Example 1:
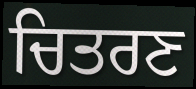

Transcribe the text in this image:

ਚਿਤਰਣ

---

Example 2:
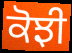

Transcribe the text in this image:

ਕੋਝੀ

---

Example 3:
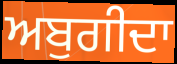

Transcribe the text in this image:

ਅਬੁਗੀਦਾ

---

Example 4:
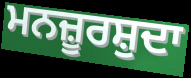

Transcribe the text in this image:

ਮਨਜ਼ੂਰਸ਼ੁਦਾ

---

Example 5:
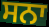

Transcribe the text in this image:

ਸਨਾ